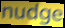
nudge